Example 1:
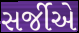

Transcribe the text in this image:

સર્જીએ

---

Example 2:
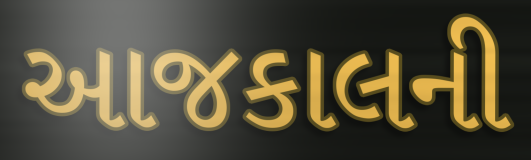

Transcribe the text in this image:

આજકાલની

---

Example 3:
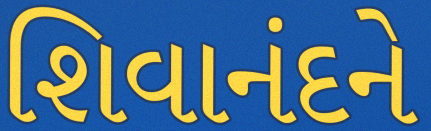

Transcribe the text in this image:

શિવાનંદને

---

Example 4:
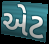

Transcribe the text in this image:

એટ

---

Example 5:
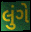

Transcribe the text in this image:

લુંગે